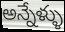
అన్నేళ్ళు